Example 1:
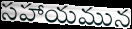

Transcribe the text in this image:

సహాయమున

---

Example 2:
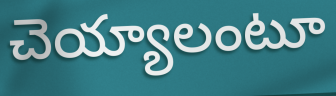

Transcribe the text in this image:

చెయ్యాలంటూ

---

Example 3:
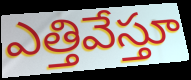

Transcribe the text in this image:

ఎత్తివేస్తూ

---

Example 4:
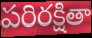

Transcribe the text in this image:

పరిరక్షితా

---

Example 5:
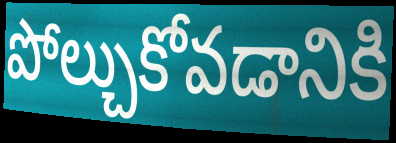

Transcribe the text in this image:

పోల్చుకోవడానికి